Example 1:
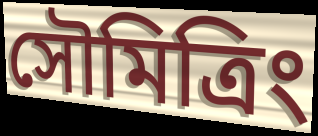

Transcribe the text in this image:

সৌমিত্রিং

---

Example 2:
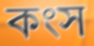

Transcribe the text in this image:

কংস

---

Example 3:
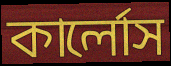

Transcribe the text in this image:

কার্লোস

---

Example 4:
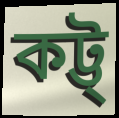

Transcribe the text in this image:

কট্ট্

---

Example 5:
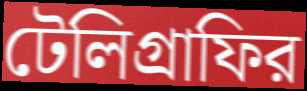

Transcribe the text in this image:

টেলিগ্রাফির